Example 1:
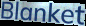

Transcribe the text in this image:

Blanket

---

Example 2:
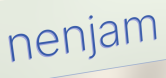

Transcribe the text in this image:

nenjam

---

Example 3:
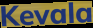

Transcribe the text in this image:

Kevala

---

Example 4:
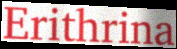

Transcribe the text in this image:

Erithrina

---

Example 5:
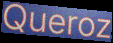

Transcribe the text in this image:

Queroz